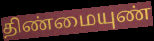
திண்மையுண்